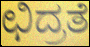
ಛಿದ್ರತೆ